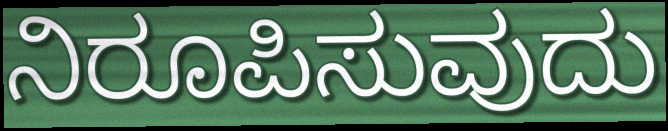
ನಿರೂಪಿಸುವುದು